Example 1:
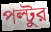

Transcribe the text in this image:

পল্টুর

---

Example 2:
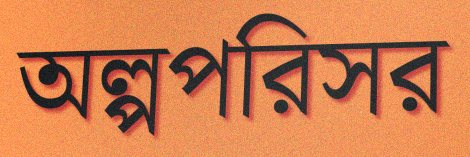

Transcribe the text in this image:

অল্পপরিসর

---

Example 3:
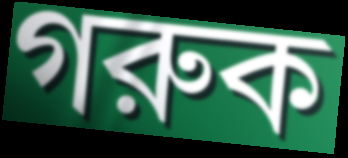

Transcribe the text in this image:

গরুক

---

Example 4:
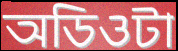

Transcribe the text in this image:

অডিওটা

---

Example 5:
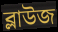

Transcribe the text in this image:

ব্লাউজ